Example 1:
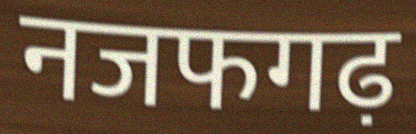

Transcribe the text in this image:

नजफगढ़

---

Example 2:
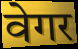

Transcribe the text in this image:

वेगर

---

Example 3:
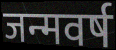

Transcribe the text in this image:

जन्मवर्ष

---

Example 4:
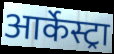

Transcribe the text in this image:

आर्केस्ट्रा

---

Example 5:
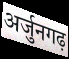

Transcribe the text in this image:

अर्जुनगढ़